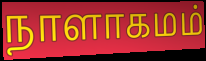
நாளாகமம்